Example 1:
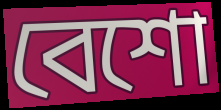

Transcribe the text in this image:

বেশো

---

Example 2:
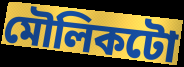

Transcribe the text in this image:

মৌলিকটো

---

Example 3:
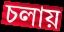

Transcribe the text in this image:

চলায়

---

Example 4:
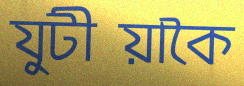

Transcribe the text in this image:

যুটীয়াকৈ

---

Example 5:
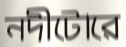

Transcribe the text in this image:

নদীটোৱে